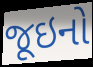
જૂઇનો